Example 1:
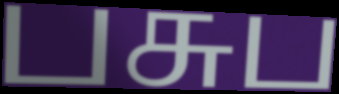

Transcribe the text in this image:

பசுப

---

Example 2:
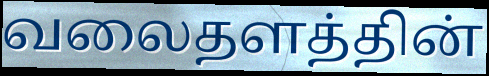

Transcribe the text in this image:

வலைதளத்தின்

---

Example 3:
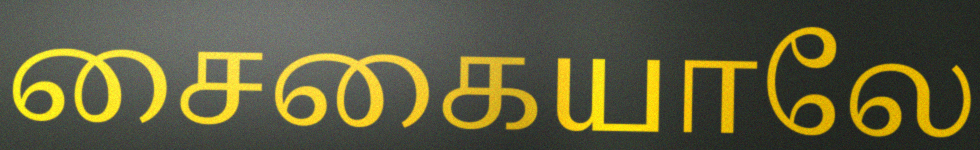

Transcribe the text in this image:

சைகையாலே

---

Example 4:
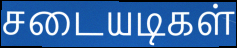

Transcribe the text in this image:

சடையடிகள்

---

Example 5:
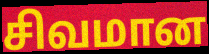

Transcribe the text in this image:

சிவமான